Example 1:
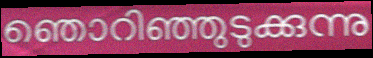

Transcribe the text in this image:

ഞൊറിഞ്ഞുടുക്കുന്നു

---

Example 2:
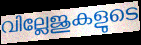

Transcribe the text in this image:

വില്ലേജുകളുടെ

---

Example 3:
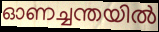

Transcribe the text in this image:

ഓണച്ചന്തയിൽ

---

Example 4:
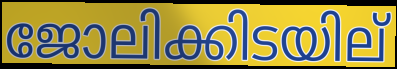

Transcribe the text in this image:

ജോലിക്കിടയില്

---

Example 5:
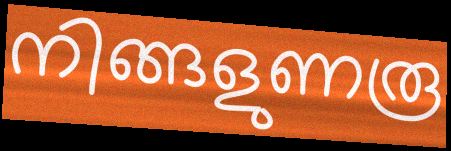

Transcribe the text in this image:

നിങ്ങളുണരൂ